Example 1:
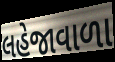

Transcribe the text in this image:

લહેજાવાળા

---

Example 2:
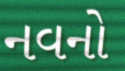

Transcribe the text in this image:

નવનો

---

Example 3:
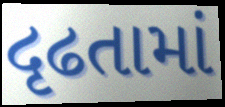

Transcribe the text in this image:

દૃઢતામાં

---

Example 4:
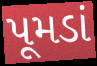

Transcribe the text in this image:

પૂમડાં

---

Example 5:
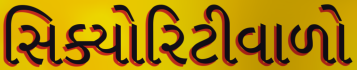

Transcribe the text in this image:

સિક્યોરિટીવાળો